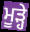
ਮੂੜ੍ਹੇ